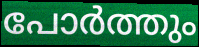
പോർത്തും